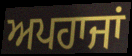
ਅਪਹਾਜਾਂ